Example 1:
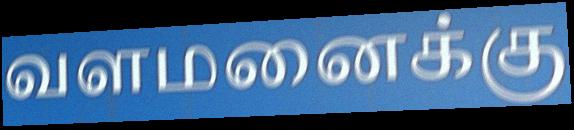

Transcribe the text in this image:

வளமனைக்கு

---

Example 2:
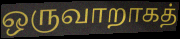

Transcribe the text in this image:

ஒருவாறாகத்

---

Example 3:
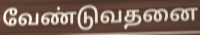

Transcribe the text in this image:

வேண்டுவதனை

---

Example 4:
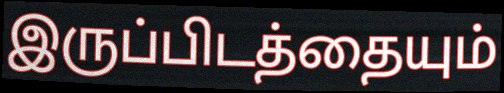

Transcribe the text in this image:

இருப்பிடத்தையும்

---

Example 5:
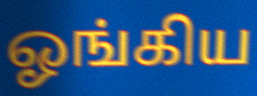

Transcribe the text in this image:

ஓங்கிய